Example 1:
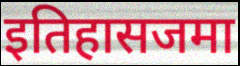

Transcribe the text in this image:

इतिहासजमा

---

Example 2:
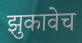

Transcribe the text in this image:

झुकावेच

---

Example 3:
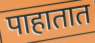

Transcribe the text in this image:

पाहातात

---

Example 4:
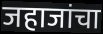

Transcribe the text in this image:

जहाजांचा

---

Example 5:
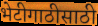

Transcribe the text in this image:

भेटीगाठीसाठी